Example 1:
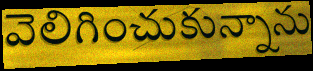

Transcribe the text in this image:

వెలిగించుకున్నాను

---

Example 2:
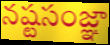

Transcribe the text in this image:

నష్టసంజ్ఞా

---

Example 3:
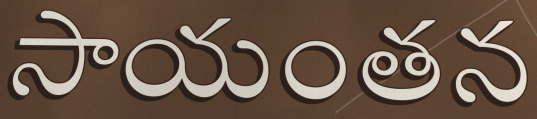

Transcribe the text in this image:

సాయంతన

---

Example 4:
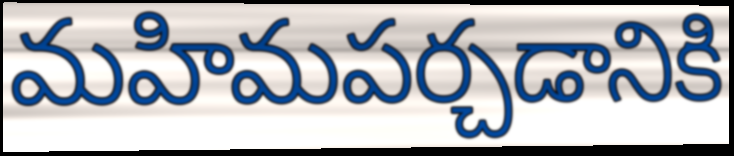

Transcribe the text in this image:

మహిమపర్చడానికి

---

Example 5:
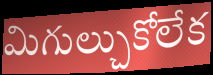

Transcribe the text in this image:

మిగుల్చుకోలేక